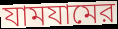
যামযামের